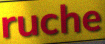
ruche